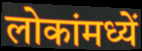
लोकांमध्यें